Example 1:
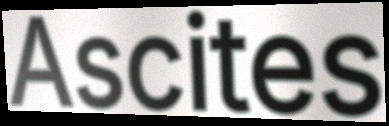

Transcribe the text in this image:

Ascites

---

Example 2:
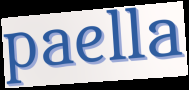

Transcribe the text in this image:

paella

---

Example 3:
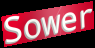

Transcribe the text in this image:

Sower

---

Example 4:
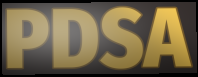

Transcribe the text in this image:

PDSA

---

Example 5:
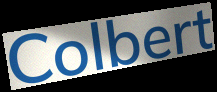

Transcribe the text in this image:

Colbert